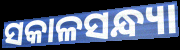
ସକାଳସନ୍ଧ୍ୟା